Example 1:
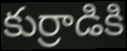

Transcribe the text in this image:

కుర్రాడికి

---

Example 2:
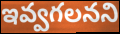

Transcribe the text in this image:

ఇవ్వగలనని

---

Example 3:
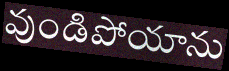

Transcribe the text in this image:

వుండిపోయాను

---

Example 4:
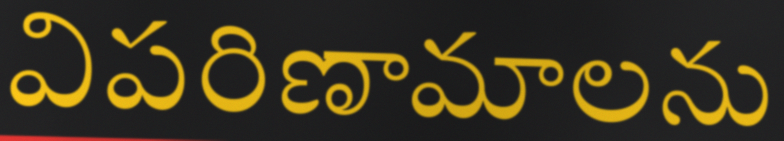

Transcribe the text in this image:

విపరిణామాలను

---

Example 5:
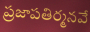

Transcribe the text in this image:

ప్రజాపతిర్మనవే